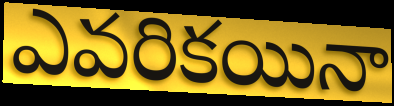
ఎవరికయినా